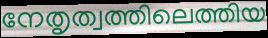
നേതൃത്വത്തിലെത്തിയ